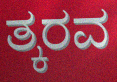
ತ್ಕರವ